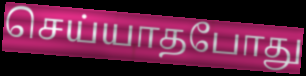
செய்யாதபோது